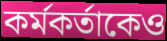
কর্মকর্তাকেও